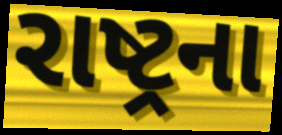
રાષ્ટ્રના